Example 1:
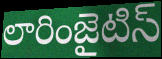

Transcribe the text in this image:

లారింజైటిస్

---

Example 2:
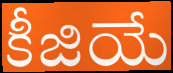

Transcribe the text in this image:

కీజియే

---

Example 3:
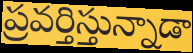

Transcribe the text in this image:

ప్రవర్తిస్తున్నాడా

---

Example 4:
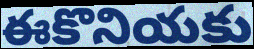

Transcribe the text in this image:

ఈకొనియకు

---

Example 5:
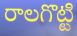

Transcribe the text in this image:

రాలగొట్టి